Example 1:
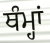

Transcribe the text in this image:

ਥੰਮ੍ਹਾਂ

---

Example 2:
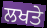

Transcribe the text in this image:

ਲਖਤੇ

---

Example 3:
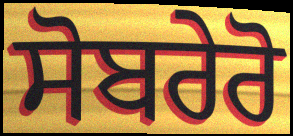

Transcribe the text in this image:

ਸੋਬਰੇਰੋ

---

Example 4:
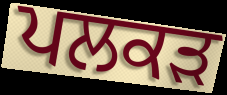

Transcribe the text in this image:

ਪਲਕੜ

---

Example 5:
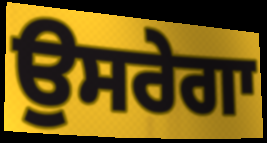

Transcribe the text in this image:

ਉਸਰੇਗਾ